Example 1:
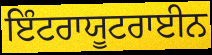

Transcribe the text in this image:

ਇੰਟਰਾਯੂਟਰਾਈਨ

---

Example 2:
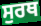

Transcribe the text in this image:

ਸੁਰਥ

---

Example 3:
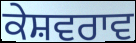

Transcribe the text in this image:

ਕੇਸ਼ਵਰਾਵ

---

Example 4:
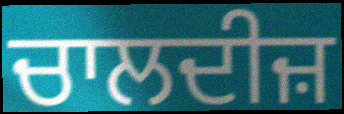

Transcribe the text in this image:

ਚਾਲਦੀਜ਼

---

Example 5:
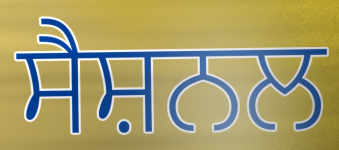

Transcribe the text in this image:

ਸੈਸ਼ਨਲ